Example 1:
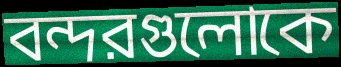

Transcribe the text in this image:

বন্দরগুলোকে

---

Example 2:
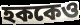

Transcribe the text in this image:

হককেও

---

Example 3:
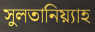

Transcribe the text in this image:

সুলতানিয়্যাহ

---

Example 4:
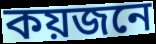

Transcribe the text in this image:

কয়জনে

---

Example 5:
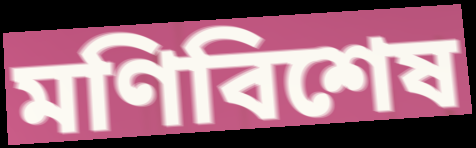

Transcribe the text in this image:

মণিবিশেষ